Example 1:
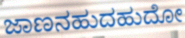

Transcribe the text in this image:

ಜಾಣನಹುದಹುದೋ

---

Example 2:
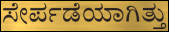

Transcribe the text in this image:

ಸೇರ್ಪಡೆಯಾಗಿತ್ತು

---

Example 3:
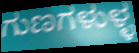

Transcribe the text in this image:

ಗುಣಗಳುಳ್ಳ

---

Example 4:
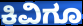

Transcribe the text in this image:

ಕಿವಿಗೂ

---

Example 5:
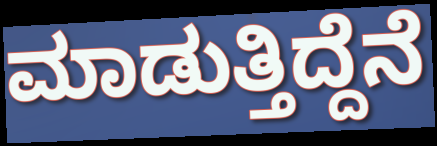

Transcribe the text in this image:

ಮಾಡುತ್ತಿದ್ದೆನೆ